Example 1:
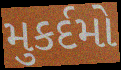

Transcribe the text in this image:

મુકર્દમો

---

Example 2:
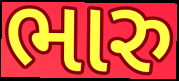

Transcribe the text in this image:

ભારુ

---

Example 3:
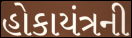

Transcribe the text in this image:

હોકાયંત્રની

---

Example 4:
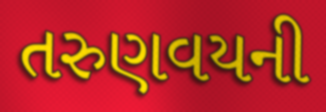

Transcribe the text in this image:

તરુણવયની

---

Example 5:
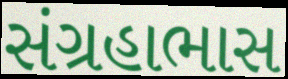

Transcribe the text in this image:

સંગ્રહાભાસ